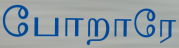
போறாரே